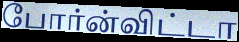
போர்ன்விட்டா